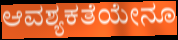
ಆವಶ್ಯಕತೆಯೇನೂ